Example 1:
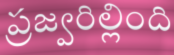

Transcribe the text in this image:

ప్రజ్వరిల్లింది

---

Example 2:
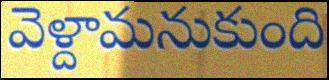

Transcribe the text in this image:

వెళ్దామనుకుంది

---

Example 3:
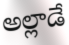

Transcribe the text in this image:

అల్లాడే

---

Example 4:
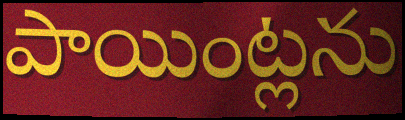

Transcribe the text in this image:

పాయింట్లను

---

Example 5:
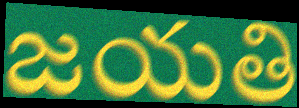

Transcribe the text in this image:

జయతి